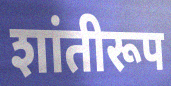
शांतीरूप